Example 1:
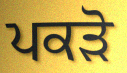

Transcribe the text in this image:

ਪਕੜੋ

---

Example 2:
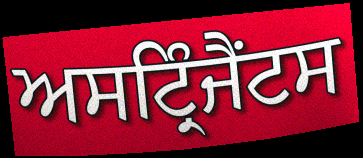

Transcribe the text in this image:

ਅਸਟ੍ਰਿੰਜੈਂਟਸ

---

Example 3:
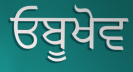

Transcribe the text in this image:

ਓਬੂਖੋਵ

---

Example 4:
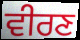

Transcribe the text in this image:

ਵੀਰਣ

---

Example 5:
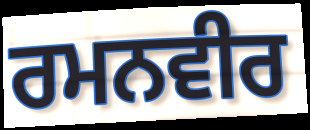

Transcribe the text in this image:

ਰਮਨਵੀਰ